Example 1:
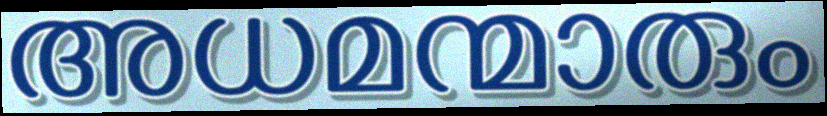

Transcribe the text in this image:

അധമന്മാരും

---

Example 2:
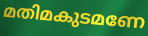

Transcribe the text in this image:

മതിമകുടമണേ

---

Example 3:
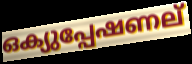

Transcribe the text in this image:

ഒക്യുപ്പേഷണല്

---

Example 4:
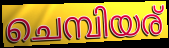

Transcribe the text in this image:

ചെമ്പിയര്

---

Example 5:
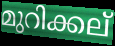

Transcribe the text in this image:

മുറിക്കല്